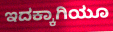
ಇದಕ್ಕಾಗಿಯೂ